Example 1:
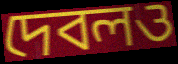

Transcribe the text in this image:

দেবলও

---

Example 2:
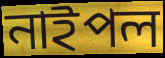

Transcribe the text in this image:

নাইপল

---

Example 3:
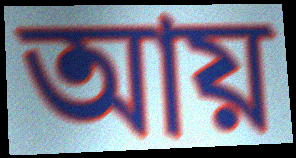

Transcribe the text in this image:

আয়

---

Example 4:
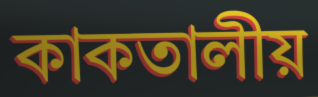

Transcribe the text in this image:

কাকতালীয়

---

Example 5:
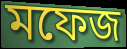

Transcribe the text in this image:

মফেজ